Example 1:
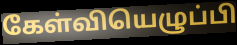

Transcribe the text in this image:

கேள்வியெழுப்பி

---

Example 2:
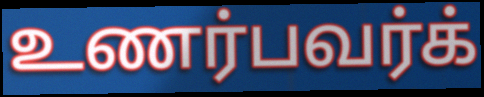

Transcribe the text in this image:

உணர்பவர்க்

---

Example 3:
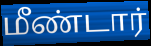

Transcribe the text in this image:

மீண்டார்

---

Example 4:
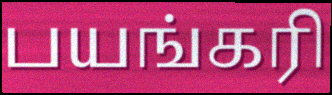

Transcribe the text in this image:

பயங்கரி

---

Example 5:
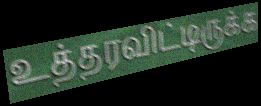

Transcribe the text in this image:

உத்தரவிட்டிருக்க